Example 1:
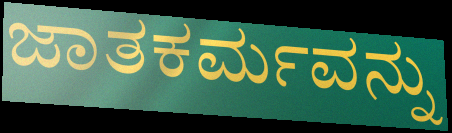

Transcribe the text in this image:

ಜಾತಕರ್ಮವನ್ನು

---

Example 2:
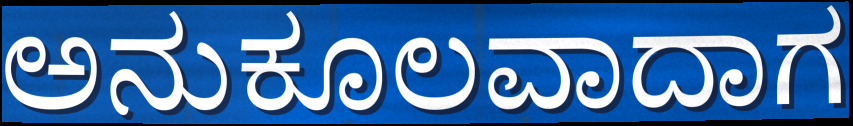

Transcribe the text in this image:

ಅನುಕೂಲವಾದಾಗ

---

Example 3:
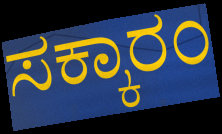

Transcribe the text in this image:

ಸಕ್ಕಾರಂ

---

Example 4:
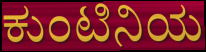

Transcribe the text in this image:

ಕುಂಟಿನಿಯ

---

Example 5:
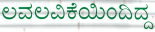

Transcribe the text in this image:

ಲವಲವಿಕೆಯಿಂದಿದ್ದ